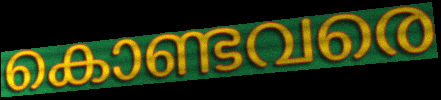
കൊണ്ടവരെ